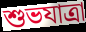
শুভযাত্রা